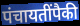
पंचायतींपैकी